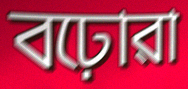
বঢ়োৱা